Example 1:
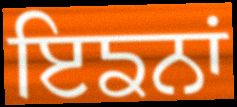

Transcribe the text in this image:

ਇਙਨਾਂ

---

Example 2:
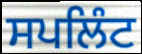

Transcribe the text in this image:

ਸਪਲਿੰਟ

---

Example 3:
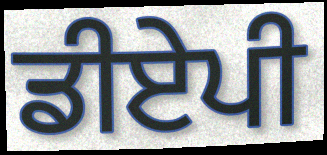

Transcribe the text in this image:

ਡੀਏਪੀ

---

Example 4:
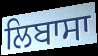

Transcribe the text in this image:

ਲਿਬਾਸਾ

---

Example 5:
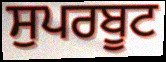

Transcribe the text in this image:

ਸੁਪਰਬੂਟ